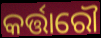
କର୍ତ୍ତାରୌ